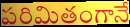
పరిమితంగానే